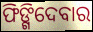
ଫିଙ୍ଗିଦେବାର